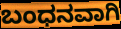
ಬಂಧನವಾಗಿ